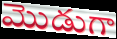
మొడుగా